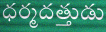
ధర్మదత్తుడు